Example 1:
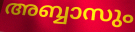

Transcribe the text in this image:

അബ്ബാസും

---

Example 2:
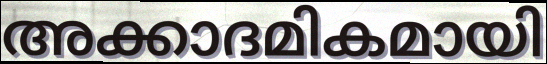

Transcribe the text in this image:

അക്കാദമികമായി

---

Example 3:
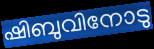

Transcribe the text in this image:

ഷിബുവിനോടു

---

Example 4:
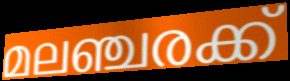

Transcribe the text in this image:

മലഞ്ചരക്ക്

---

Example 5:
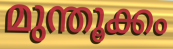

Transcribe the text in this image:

മുന്തൂക്കം